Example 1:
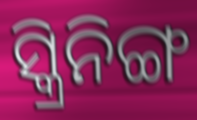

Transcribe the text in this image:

ସ୍କ୍ରିନିଙ୍ଗ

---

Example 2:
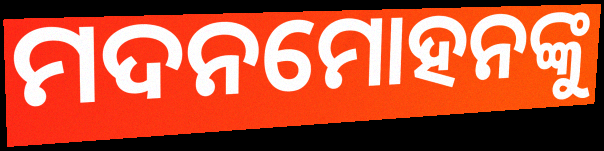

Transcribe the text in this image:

ମଦନମୋହନଙ୍କୁ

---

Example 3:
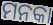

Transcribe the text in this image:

ମନକା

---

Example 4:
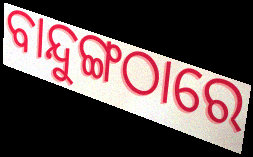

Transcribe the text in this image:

ବାନ୍ଦୁଙ୍ଗଠାରେ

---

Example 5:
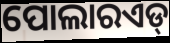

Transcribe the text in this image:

ପୋଲାରଏଡ୍